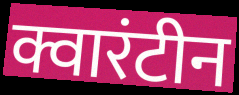
क्वारंटीन